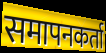
समापनकर्ता